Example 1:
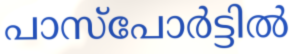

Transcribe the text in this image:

പാസ്പോർട്ടിൽ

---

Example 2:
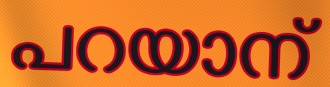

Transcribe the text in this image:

പറയാന്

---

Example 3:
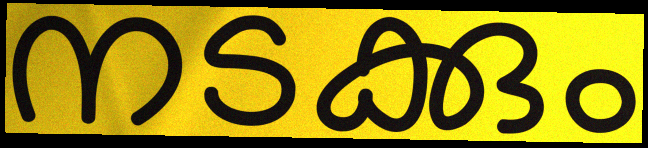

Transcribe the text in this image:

നടക്കും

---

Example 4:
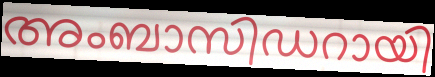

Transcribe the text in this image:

അംബാസിഡറായി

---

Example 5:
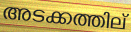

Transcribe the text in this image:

അടക്കത്തില്